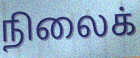
நிலைக்